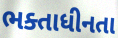
ભક્તાધીનતા